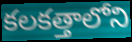
కలకత్తాలోని